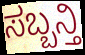
ಸಬ್ಬನ್ತಿ